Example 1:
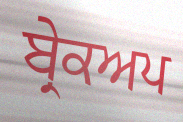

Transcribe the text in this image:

ਬ੍ਰੇਕਅਪ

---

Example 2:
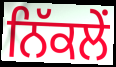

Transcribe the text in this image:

ਨਿੱਕਲੇਂ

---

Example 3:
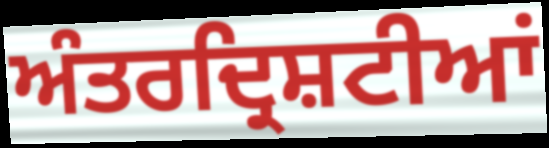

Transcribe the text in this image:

ਅੰਤਰਦ੍ਰਿਸ਼ਟੀਆਂ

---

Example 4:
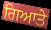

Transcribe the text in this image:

ਗਿਆਤੇ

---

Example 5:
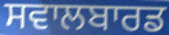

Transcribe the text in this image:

ਸਵਾਲਬਾਰਡ